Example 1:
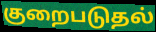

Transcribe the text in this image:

குறைபடுதல்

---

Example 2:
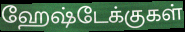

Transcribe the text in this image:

ஹேஷ்டேக்குகள்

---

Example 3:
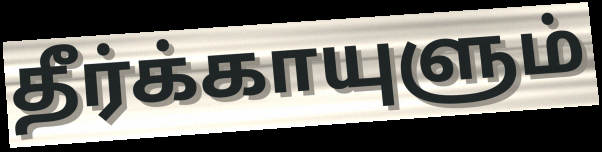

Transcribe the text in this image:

தீர்க்காயுளும்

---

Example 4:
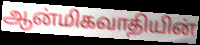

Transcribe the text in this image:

ஆன்மிகவாதியின்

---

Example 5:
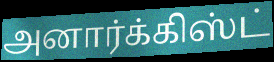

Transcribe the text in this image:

அனார்க்கிஸ்ட்